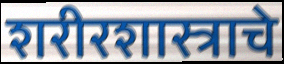
शरीरशास्त्राचे